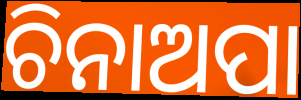
ଚିନାଅପା